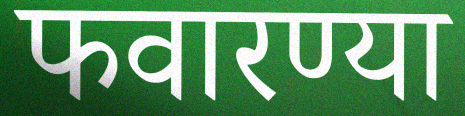
फवारण्या